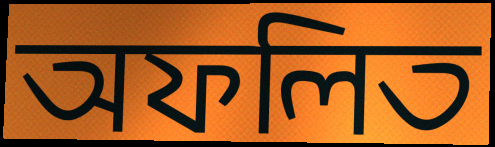
অফলিত